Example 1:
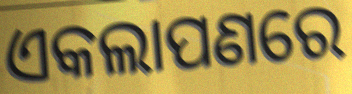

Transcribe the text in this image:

ଏକଲାପଣରେ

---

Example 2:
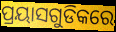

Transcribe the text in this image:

ପ୍ରୟାସଗୁଡିକରେ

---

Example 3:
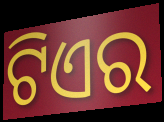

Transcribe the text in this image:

ଟିଏର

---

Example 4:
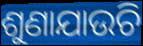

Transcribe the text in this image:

ଶୁଣାଯାଉଚି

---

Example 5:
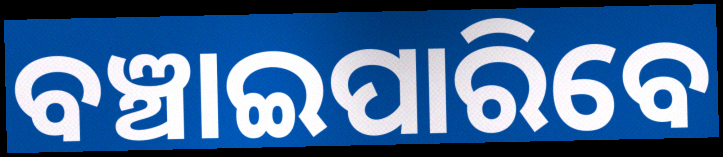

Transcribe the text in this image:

ବଞ୍ଚାଇପାରିବେ